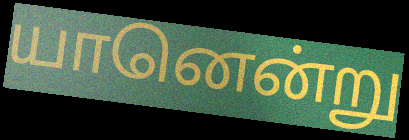
யானென்று